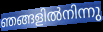
ഞങ്ങളിൽനിന്നു